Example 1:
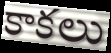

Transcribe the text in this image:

కాకలు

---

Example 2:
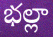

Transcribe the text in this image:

భల్లా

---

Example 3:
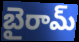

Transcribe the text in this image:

బైరామ్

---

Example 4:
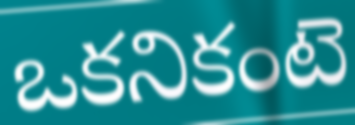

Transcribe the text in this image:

ఒకనికంటె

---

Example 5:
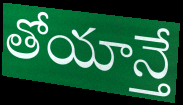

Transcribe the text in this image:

తోయాన్తే